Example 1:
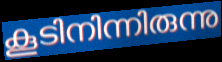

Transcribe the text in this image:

കൂടിനിന്നിരുന്നു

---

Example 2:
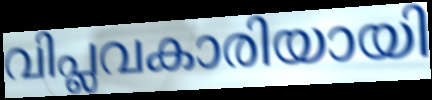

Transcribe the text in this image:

വിപ്ലവകാരിയായി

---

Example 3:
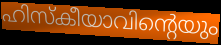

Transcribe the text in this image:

ഹിസ്കീയാവിന്റെയും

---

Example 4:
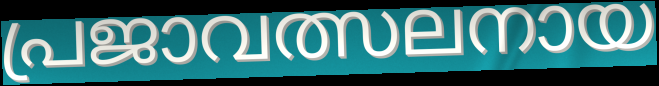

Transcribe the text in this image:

പ്രജാവത്സലനായ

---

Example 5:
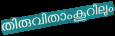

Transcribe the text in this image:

തിരുവിതാംകൂറിലും